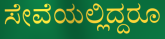
ಸೇವೆಯಲ್ಲಿದ್ದರೂ